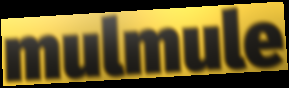
mulmule